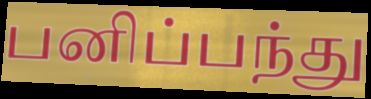
பனிப்பந்து